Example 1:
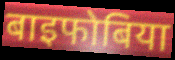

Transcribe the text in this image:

बाइफोबिया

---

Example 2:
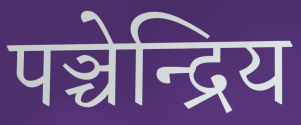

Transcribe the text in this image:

पञ्चेन्द्रिय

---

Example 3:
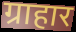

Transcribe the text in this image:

ग्राहार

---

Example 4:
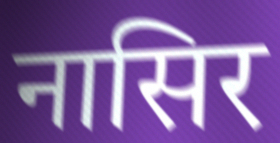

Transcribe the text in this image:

नासिर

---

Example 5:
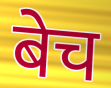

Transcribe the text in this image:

बेच